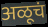
अळूचं